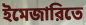
ইমেজারিতে